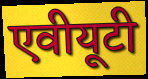
एवीयूटी